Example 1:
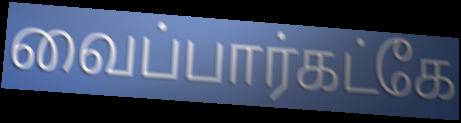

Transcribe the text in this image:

வைப்பார்கட்கே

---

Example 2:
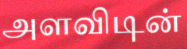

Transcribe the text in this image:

அளவிடின்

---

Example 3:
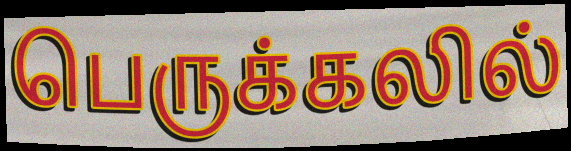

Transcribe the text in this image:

பெருக்கலில்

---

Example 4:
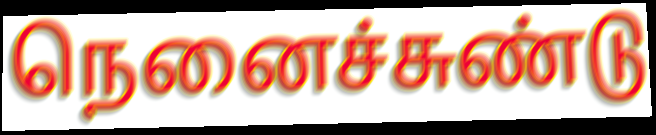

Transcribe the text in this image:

நெனைச்சுண்டு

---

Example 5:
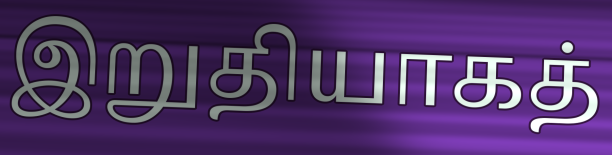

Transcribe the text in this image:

இறுதியாகத்